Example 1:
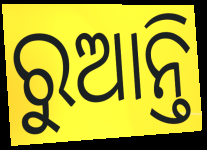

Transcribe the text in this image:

ରୁଆନ୍ତି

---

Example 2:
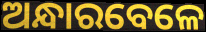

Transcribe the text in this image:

ଅନ୍ଧାରବେଳେ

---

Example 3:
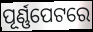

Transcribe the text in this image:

ପୂର୍ଣ୍ଣପେଟରେ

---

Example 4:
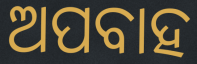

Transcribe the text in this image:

ଅପବାହ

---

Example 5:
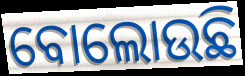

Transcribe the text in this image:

ବୋଲୋଉଛି